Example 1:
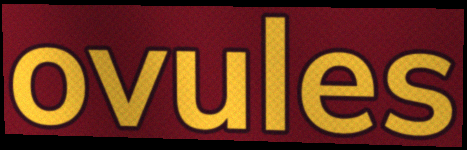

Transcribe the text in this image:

ovules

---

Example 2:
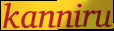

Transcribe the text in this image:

kanniru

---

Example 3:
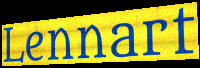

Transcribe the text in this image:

Lennart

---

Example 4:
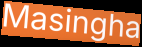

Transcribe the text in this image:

Masingha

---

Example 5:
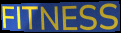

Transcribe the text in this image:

FITNESS